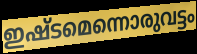
ഇഷ്ടമെന്നൊരുവട്ടം